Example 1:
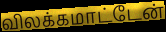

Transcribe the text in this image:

விலக்கமாட்டேன்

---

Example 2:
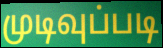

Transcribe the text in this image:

முடிவுப்படி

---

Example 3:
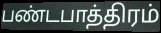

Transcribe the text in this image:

பண்டபாத்திரம்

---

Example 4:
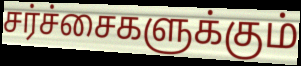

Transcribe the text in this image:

சர்ச்சைகளுக்கும்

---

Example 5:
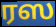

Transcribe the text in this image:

ரஸ